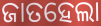
ଜାତହେଲା